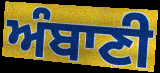
ਅੰਬਾਣੀ